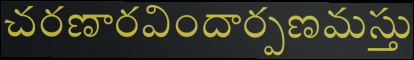
చరణారవిందార్పణమస్తు